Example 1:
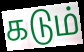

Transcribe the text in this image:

கடும்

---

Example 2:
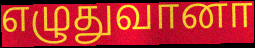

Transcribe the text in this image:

எழுதுவானா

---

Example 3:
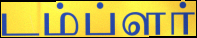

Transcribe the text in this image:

டம்ப்ளர்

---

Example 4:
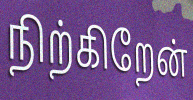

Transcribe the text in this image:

நிற்கிறேன்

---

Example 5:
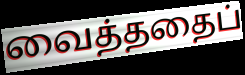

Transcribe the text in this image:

வைத்ததைப்